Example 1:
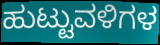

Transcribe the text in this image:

ಹುಟ್ಟುವಳಿಗಳ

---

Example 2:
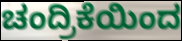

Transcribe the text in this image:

ಚಂದ್ರಿಕೆಯಿಂದ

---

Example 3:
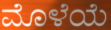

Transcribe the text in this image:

ಮೊಳೆಯೆ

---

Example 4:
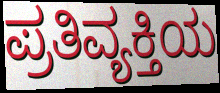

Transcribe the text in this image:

ಪ್ರತಿವ್ಯಕ್ತಿಯ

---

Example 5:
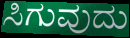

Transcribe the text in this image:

ಸಿಗುವುದು